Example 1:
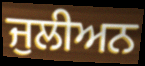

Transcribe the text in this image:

ਜੁਲੀਅਨ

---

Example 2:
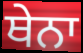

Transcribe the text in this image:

ਥੇਨਾ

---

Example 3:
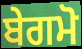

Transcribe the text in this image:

ਬੇਗਮੋ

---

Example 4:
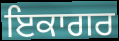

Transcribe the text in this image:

ਇਕਾਗਰ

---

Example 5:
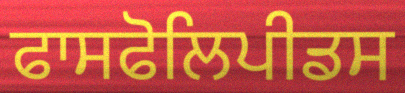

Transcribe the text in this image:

ਫਾਸਫੋਲਿਪੀਡਸ